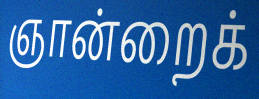
ஞான்றைக்